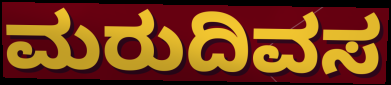
ಮರುದಿವಸ